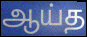
ஆய்த